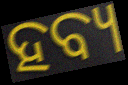
ହବ୍ୟ